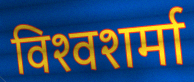
विश्वशर्मा